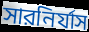
সারনির্যাস